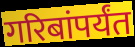
गरिबांपर्यंत